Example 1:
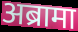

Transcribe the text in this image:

अब्रामा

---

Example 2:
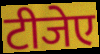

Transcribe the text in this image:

टीजेए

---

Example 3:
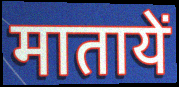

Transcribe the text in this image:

मातायें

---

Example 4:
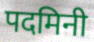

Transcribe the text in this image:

पदमिनी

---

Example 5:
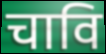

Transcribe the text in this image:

चावि